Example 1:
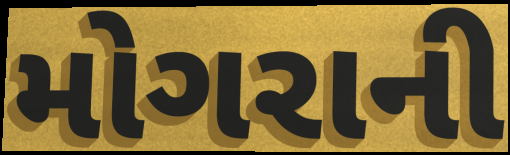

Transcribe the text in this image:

મોગરાની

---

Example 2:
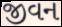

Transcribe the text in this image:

જીવન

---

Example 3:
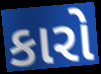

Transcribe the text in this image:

કારો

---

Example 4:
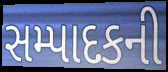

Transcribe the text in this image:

સમ્પાદકની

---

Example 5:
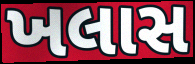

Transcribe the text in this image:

ખલાસ